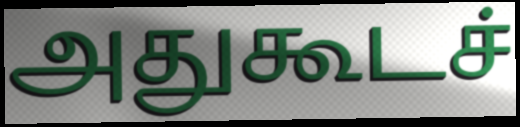
அதுகூடச்